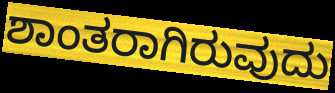
ಶಾಂತರಾಗಿರುವುದು